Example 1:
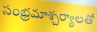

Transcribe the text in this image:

సంభ్రమాశ్చర్యాలతో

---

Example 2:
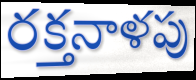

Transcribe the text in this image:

రక్తనాళపు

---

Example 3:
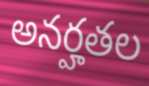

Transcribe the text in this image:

అనర్హతల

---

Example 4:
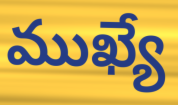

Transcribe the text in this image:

ముఖ్యే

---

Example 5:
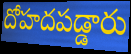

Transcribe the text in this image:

దోహదపడ్డారు